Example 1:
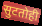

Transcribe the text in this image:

सुटतोही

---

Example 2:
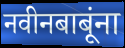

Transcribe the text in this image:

नवीनबाबूंना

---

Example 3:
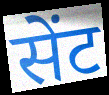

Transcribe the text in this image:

सेंट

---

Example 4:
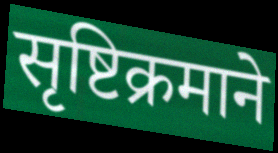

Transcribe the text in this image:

सृष्टिक्रमाने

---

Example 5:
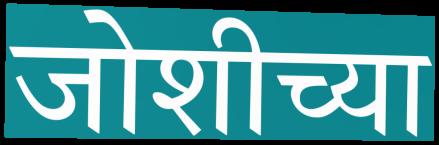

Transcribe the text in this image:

जोशीच्या